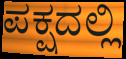
ಪಕ್ಷದಲ್ಲಿ